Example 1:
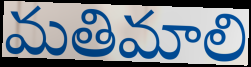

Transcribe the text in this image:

మతిమాలి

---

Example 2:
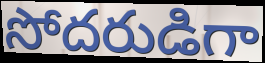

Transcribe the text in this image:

సోదరుడిగా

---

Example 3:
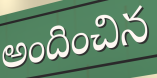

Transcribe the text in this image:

అందించిన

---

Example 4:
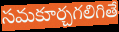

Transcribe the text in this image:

సమకూర్చగలిగితే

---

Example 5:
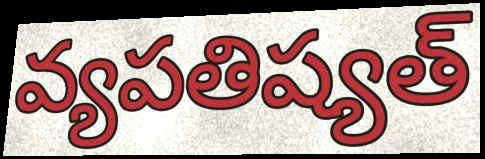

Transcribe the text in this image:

వ్యపతిష్యత్